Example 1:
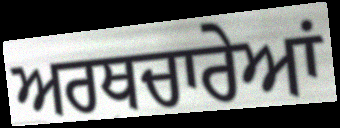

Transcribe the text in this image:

ਅਰਥਚਾਰੇਆਂ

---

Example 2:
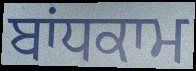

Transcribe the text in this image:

ਬਾਂਧਕਾਮ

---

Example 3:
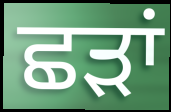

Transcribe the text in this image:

ਛੜਾਂ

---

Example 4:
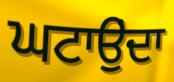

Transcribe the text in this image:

ਘਟਾਉੁਂਦਾ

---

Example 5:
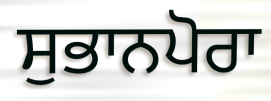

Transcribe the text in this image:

ਸੁਭਾਨਪੋਰਾ